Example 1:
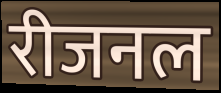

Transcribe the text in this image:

रीजनल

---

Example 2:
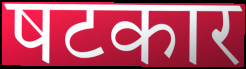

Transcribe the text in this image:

षटकार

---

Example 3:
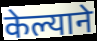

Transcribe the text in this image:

केल्याने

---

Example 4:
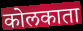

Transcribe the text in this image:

कोलकाता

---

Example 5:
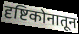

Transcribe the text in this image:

दृष्टिकोनातून